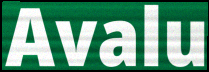
Avalu